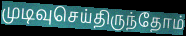
முடிவுசெய்திருந்தோம்